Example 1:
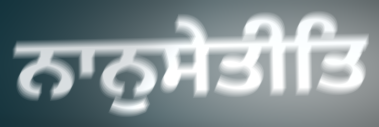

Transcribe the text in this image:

ਨਾਨੁਸੇਤੀਤਿ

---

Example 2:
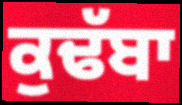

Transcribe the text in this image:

ਕੁਢੱਬਾ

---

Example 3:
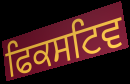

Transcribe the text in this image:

ਫਿਕਸਟਿਵ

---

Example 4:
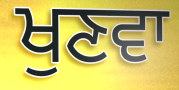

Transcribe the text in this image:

ਖੁਣਵਾ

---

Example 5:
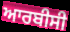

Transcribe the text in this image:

ਆਰਬੀਸੀ